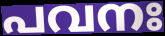
പവനഃ